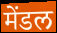
मेंडल